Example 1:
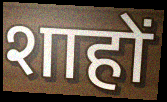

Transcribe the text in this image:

शाहों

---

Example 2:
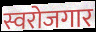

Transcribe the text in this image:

स्‍वरोजगार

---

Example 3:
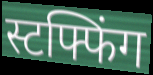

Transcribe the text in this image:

स्टफ्फिंग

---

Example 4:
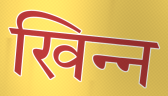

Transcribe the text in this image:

खिन्‍न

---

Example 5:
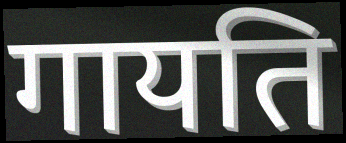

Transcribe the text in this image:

गायति